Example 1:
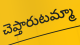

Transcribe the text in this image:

చెప్తారుటమ్మా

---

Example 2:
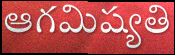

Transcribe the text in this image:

ఆగమిష్యతి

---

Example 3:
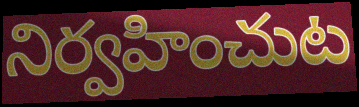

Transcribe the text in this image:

నిర్వహించుట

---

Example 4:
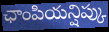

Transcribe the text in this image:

ఛాంపియన్షిప్కు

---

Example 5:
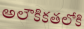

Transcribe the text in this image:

అలౌకికతలోకి